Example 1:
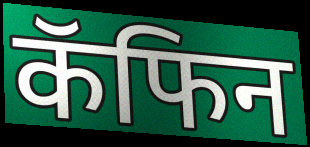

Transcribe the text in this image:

कॅफिन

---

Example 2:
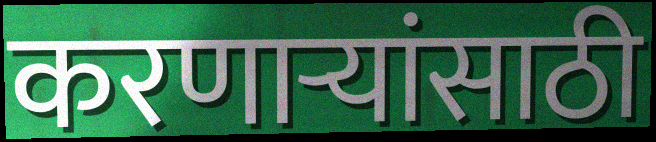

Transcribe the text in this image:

करणाऱ्यांसाठी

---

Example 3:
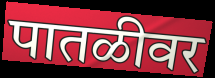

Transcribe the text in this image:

पातळीवर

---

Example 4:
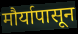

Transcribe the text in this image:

मौर्यापासून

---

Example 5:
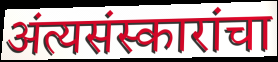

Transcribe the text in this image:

अंत्यसंस्कारांचा